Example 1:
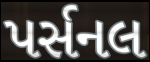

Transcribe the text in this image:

પર્સનલ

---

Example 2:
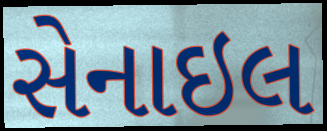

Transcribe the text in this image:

સેનાઇલ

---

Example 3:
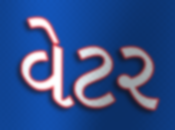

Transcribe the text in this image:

વેટર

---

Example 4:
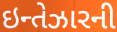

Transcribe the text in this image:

ઇન્તેઝારની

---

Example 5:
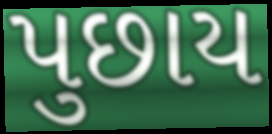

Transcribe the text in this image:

પુછાય